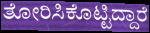
ತೋರಿಸಿಕೊಟ್ಟಿದ್ದಾರೆ